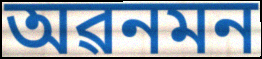
অৱনমন